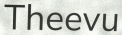
Theevu